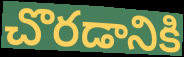
చొరడానికి